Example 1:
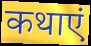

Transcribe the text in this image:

कथाएं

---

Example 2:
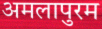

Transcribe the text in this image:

अमलापुरम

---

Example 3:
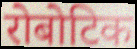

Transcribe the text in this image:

रोबोटिक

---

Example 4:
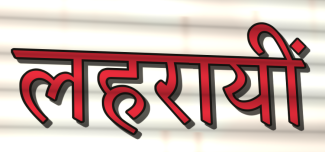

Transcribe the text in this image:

लहरायीं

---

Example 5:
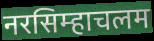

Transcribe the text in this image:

नरसिम्हाचलम